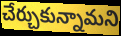
చేర్చుకున్నామని